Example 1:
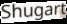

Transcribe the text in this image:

Shugart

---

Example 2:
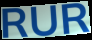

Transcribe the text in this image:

RUR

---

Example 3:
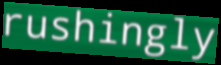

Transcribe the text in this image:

rushingly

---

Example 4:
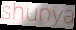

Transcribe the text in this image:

shunya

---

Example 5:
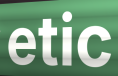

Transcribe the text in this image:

etic